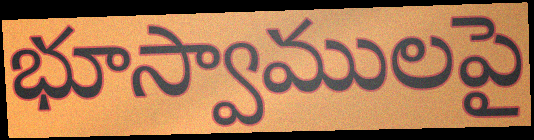
భూస్వాములపై